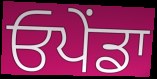
ਓਪੇਂਡਾ